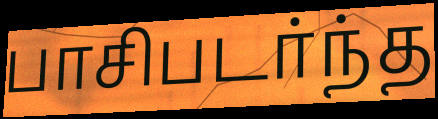
பாசிபடர்ந்த